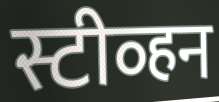
स्टीव्हन